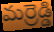
మర్రెడ్డి